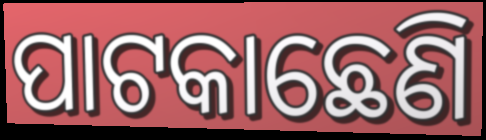
ପାଟକାଛେଣି